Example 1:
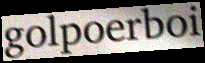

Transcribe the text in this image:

golpoerboi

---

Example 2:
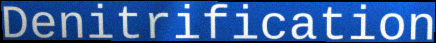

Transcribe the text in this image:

Denitrification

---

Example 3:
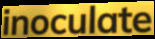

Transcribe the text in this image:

inoculate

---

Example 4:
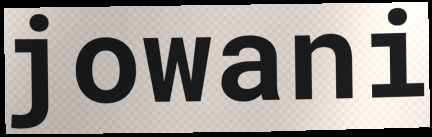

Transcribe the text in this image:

jowani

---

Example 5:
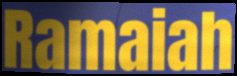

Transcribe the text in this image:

Ramaiah